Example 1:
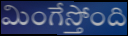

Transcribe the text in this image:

మింగేస్తోంది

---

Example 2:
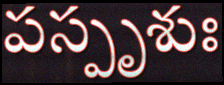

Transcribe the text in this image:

పస్పృశుః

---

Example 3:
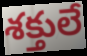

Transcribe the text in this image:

శక్తులే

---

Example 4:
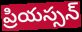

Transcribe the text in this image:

ప్రియస్సన్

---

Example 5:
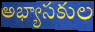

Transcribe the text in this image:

అభ్యాసకుల